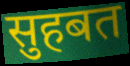
सुहबत